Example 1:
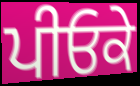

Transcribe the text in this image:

ਪੀਓਕੇ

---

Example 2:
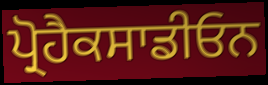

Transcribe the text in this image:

ਪ੍ਰੋਹੈਕਸਾਡੀਓਨ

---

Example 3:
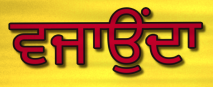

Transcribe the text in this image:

ਵਜਾਉਂਦਾ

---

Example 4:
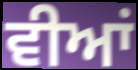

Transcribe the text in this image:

ਵੀਆਂ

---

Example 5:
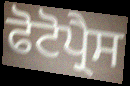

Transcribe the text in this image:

ਫੋਟੋਪ੍ਰੈਸ